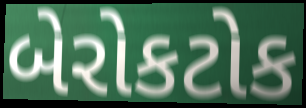
બેરોકટોક